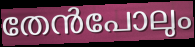
തേൻപോലും